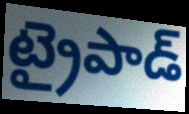
ట్రైపాడ్